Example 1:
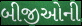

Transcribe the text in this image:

બીજીઓની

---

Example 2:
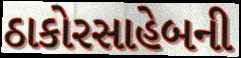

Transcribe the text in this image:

ઠાકોરસાહેબની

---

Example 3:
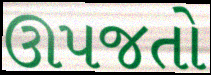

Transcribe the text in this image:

ઊપજતો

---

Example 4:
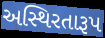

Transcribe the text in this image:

અસ્થિરતારૂપ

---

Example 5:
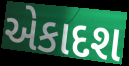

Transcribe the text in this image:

એકાદશ